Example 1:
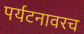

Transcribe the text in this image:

पर्यटनावरच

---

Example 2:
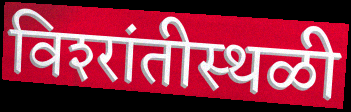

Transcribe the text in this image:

विश्रांतीस्थळी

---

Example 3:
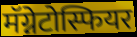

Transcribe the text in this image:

मॅग्नेटोस्फियर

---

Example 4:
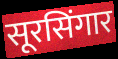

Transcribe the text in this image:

सूरसिंगार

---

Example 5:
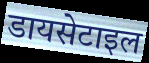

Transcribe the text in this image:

डायसेटाइल